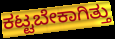
ಕಟ್ಟಬೇಕಾಗಿತ್ತು